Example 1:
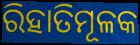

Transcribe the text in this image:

ରିହାତିମୂଳକ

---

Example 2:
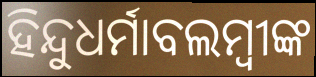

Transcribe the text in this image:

ହିନ୍ଦୁଧର୍ମାବଲମ୍ବୀଙ୍କ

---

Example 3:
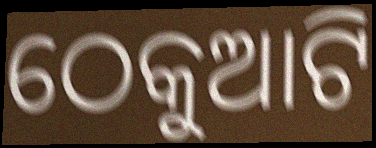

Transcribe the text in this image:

ଠେକୁଆଟି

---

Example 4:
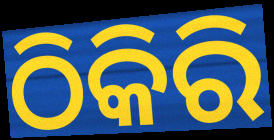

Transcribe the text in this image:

ଠିକିରି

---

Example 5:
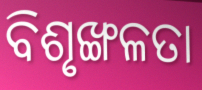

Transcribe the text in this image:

ବିଶୃଙ୍ଖଳତା